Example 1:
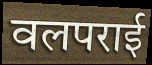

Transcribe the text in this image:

वलपराई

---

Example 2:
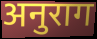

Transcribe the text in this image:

अनुराग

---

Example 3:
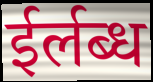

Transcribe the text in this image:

ईर्लब्ध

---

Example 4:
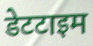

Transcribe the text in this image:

डेटटाइम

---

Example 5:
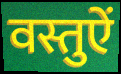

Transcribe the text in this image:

वस्तुऐं